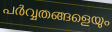
പർവ്വതങ്ങളെയും